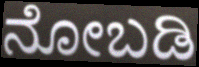
ನೋಬಡಿ